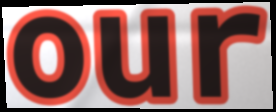
our